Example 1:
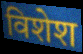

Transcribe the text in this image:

विशेश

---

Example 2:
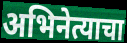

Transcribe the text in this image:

अभिनेत्याचा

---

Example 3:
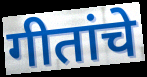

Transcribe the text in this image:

गीतांचे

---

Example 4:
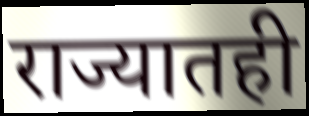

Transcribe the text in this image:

राज्यातही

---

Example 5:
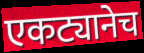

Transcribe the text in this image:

एकट्यानेच